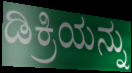
ಡಿಕ್ರಿಯನ್ನು